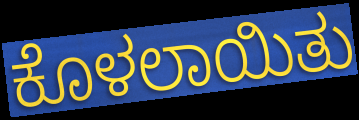
ಕೊಳಲಾಯಿತು